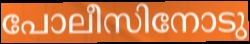
പോലീസിനോടു